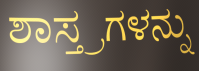
ಶಾಸ್ತ್ರಗಳನ್ನು